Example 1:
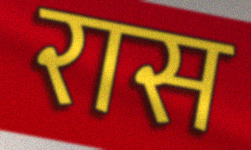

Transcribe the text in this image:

रास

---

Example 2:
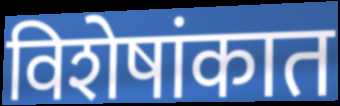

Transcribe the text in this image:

विशेषांकात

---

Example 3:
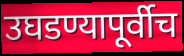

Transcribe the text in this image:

उघडण्यापूर्वीच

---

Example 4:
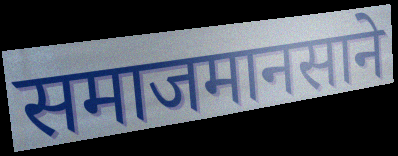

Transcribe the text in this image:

समाजमानसाने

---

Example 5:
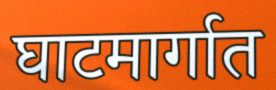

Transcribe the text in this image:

घाटमार्गात